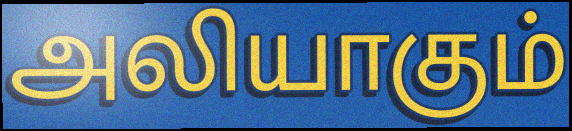
அலியாகும்